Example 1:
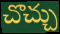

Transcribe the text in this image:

చొచ్చు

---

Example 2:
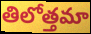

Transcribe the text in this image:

తిలోత్తమా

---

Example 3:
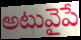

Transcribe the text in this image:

అటువైపే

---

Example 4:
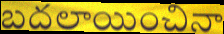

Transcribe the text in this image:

బదలాయించినా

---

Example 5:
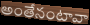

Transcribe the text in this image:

అంతేనంటావా